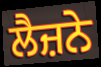
ਲੈਜ਼ਨੇ